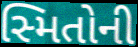
સ્મિતોની